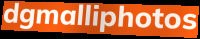
dgmalliphotos